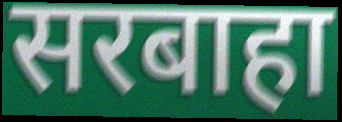
सरबाहा